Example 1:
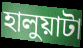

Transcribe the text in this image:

হালুয়াটা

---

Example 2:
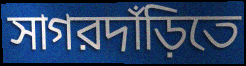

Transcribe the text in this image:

সাগরদাঁড়িতে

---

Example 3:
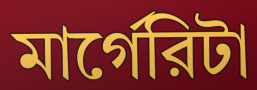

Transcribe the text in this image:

মার্গেরিটা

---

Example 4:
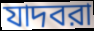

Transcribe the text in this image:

যাদবরা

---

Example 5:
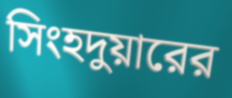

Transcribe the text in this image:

সিংহদুয়ারের